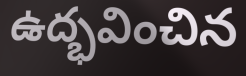
ఉద్భవించిన